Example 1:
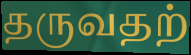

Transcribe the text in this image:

தருவதற்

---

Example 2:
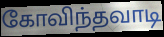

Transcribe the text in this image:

கோவிந்தவாடி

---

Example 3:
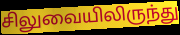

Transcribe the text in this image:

சிலுவையிலிருந்து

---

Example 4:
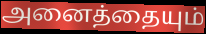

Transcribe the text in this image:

அனைத்தையும்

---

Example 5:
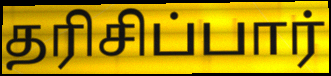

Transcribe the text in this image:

தரிசிப்பார்